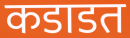
कडाडत